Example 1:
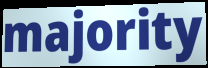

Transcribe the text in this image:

majority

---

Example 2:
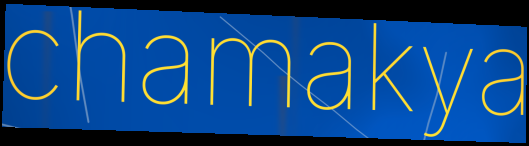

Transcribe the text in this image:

chamakya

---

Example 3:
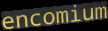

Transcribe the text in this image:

encomium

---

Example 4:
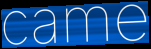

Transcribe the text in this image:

came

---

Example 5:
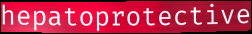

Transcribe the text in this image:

hepatoprotective